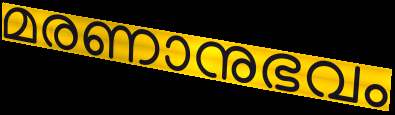
മരണാനുഭവം